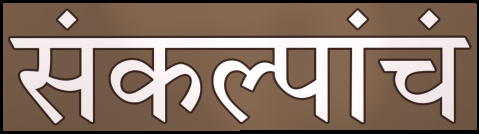
संकल्पांचं